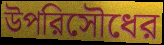
উপরিসৌধের